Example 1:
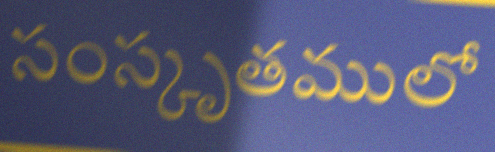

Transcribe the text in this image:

సంస్కృతములో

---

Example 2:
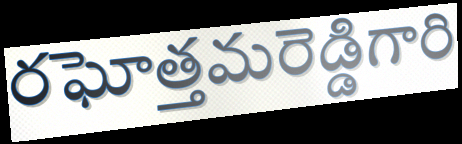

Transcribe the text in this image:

రఘోత్తమరెడ్డిగారి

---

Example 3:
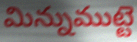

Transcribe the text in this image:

మిన్నుముట్టె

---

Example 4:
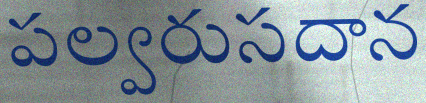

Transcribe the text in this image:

పల్వరుసదాన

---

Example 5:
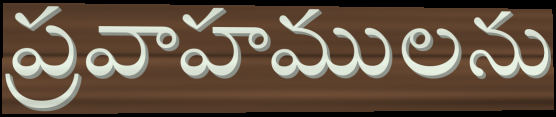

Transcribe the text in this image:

ప్రవాహములను